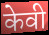
केवी